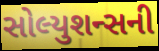
સોલ્યુશન્સની